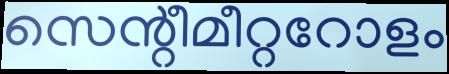
സെന്റീമീറ്ററോളം